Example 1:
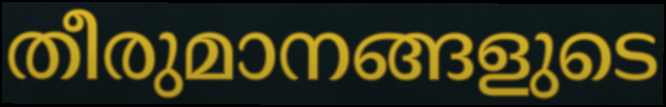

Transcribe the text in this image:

തീരുമാനങ്ങളുടെ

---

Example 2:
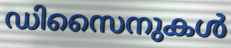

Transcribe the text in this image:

ഡിസൈനുകൾ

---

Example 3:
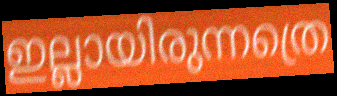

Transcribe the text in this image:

ഇല്ലായിരുന്നത്രെ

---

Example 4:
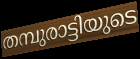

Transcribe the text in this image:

തമ്പുരാട്ടിയുടെ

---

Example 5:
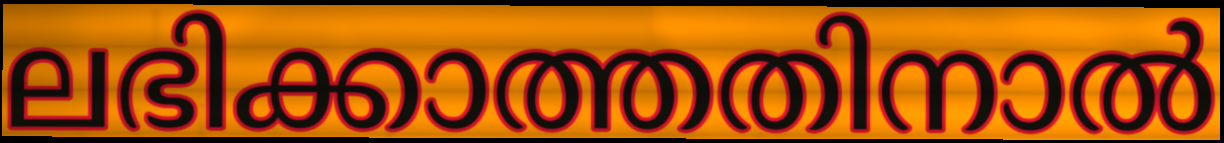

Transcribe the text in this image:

ലഭിക്കാത്തതിനാൽ